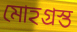
মোহগ্রস্ত